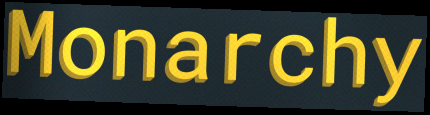
Monarchy